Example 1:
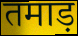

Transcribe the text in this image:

तमाड़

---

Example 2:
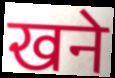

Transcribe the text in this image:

खने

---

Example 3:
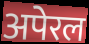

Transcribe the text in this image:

अपेरल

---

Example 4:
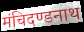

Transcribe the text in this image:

मंचिदण्डनाथ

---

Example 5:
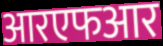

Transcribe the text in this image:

आरएफआर